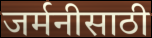
जर्मनीसाठी